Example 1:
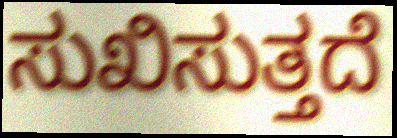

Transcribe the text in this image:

ಸುಖಿಸುತ್ತದೆ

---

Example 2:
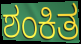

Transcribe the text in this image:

ಶಂಕಿತ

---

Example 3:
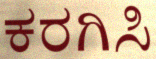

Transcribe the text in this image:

ಕರಗಿಸಿ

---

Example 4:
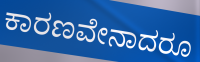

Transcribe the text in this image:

ಕಾರಣವೇನಾದರೂ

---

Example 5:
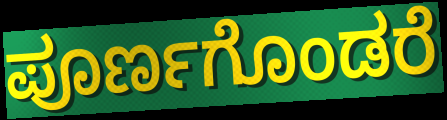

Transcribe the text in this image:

ಪೂರ್ಣಗೊಂಡರೆ